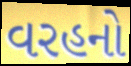
વરહનો